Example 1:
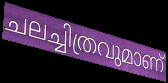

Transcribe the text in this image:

ചലച്ചിത്രവുമാണ്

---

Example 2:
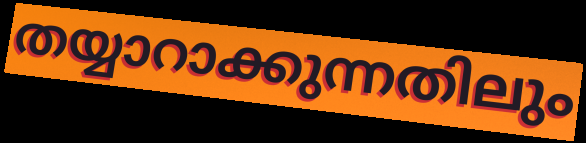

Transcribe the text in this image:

തയ്യാറാക്കുന്നതിലും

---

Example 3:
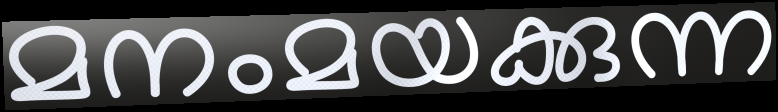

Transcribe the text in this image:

മനംമയക്കുന്ന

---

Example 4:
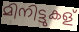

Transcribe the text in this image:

മിനിട്ടുകള്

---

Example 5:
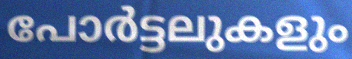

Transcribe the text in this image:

പോർട്ടലുകളും